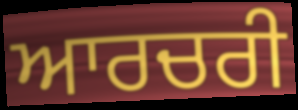
ਆਰਚਰੀ